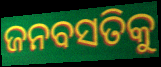
ଜନବସତିକୁ